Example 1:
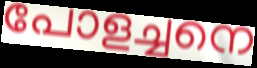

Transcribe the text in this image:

പോളച്ചനെ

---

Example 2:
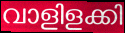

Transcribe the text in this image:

വാളിളക്കി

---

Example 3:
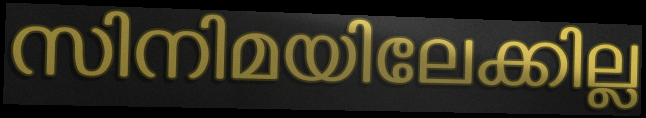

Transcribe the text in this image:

സിനിമയിലേക്കില്ല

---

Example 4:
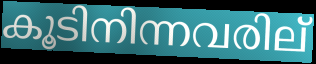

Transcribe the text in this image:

കൂടിനിന്നവരില്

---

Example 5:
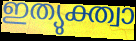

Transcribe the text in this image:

ഇത്യുക്ത്വാ